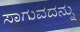
ಸಾಗುವದನ್ನು